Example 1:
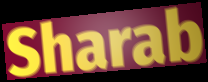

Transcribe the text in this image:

Sharab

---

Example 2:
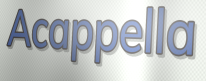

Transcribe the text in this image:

Acappella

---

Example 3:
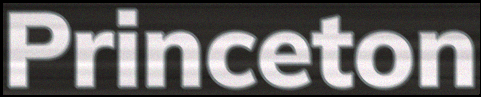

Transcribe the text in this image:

Princeton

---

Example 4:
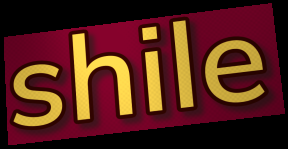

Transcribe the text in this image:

shile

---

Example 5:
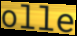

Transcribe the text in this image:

olle